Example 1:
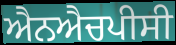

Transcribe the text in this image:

ਐਨਐਚਪੀਸੀ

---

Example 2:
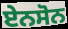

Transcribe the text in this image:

ਏਨਸੋਨ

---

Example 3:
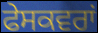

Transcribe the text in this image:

ਫੇਸਕਵਰਾਂ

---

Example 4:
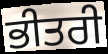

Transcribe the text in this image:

ਭੀਤਰੀ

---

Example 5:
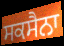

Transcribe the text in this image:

ਸਕਸੈਨਾ